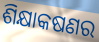
ଶିକ୍ଷାକଷଣର